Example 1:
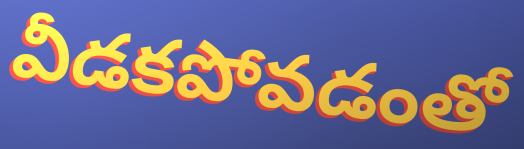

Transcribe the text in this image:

వీడకపోవడంతో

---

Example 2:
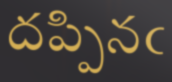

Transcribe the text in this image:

దప్పినఁ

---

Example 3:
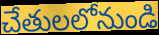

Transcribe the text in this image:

చేతులలోనుండి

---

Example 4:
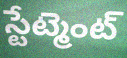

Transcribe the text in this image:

స్టేట్మెంట్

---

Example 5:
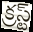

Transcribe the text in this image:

క్రస్ట్